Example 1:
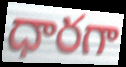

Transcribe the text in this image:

ధారగా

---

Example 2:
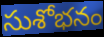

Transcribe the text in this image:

సుశోభనం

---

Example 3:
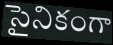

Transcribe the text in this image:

సైనికంగా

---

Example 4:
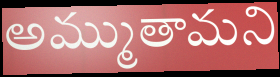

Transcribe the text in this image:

అమ్ముతామని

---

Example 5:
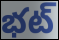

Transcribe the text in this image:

భట్